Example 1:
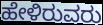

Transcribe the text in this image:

ಹೇಳಿರುವರು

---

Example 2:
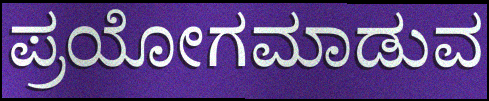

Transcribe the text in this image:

ಪ್ರಯೋಗಮಾಡುವ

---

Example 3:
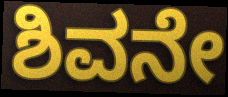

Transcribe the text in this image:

ಶಿವನೇ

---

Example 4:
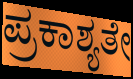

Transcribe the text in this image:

ಪ್ರಕಾಶ್ಯತೇ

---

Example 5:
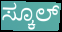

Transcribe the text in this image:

ಸ್ಕೂಲ್